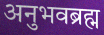
अनुभवब्रह्म